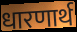
धारणार्थ